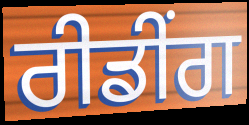
ਰੀਡੀਂਗ